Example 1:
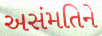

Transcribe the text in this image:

અસંમતિને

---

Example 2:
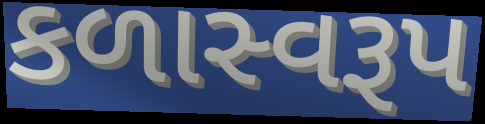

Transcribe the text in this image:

કળાસ્વરૂપ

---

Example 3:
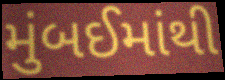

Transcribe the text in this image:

મુંબઈમાંથી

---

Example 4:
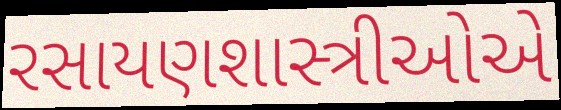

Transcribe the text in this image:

રસાયણશાસ્ત્રીઓએ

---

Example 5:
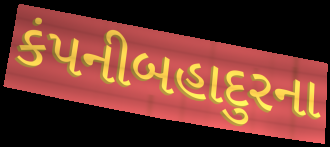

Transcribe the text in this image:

કંપનીબહાદુરના